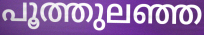
പൂത്തുലഞ്ഞ